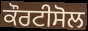
ਕੌਰਟੀਸੋਲ